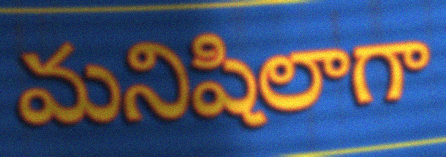
మనిషిలాగా